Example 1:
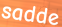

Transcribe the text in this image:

sadde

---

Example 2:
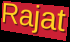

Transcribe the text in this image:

Rajat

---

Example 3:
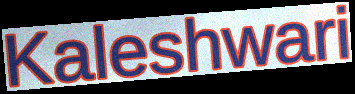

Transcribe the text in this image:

Kaleshwari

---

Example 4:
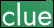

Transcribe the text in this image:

clue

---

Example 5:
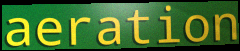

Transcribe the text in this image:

aeration